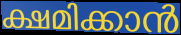
ക്ഷമിക്കാൻ